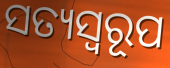
ସତ୍ୟସ୍ୱରୂପ